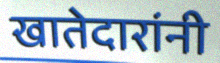
खातेदारांनी